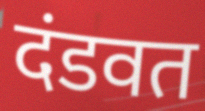
दंडवत